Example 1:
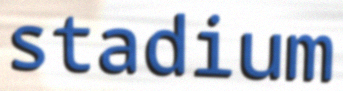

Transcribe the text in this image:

stadium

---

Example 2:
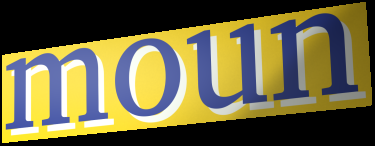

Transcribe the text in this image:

moun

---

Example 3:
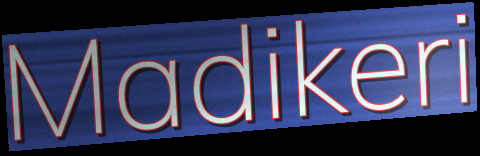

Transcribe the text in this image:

Madikeri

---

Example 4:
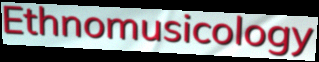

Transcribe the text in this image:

Ethnomusicology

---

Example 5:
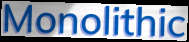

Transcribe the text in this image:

Monolithic